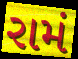
રામં